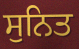
ਸੁਨਿਤ